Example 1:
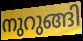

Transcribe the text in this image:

നുറുങ്ങി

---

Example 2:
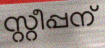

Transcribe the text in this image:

സ്റ്റീപ്പന്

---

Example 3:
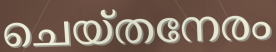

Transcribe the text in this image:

ചെയ്തനേരം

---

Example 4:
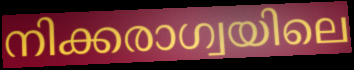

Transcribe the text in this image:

നിക്കരാഗ്വയിലെ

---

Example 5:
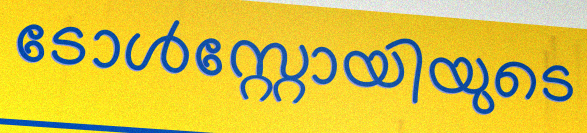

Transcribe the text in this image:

ടോൾസ്റ്റോയിയുടെ